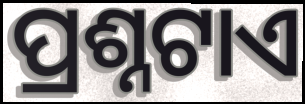
ପ୍ରଶ୍ନଟାଏ